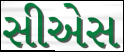
સીએસ